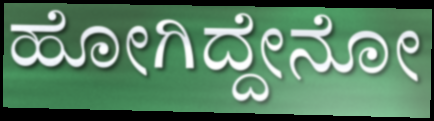
ಹೋಗಿದ್ದೇನೋ